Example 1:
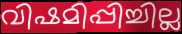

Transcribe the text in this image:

വിഷമിപ്പിച്ചില്ല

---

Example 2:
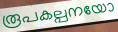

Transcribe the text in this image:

രൂപകല്പനയോ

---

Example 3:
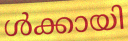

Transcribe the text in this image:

ൾക്കായി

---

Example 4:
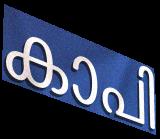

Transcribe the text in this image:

കാപി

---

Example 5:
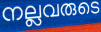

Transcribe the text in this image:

നല്ലവരുടെ